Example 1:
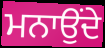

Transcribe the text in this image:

ਮਨਾਉਂਦੇ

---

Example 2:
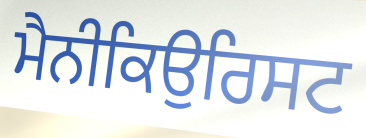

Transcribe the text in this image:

ਮੈਨੀਕਿਉਰਿਸਟ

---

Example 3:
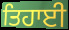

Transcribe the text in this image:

ਤਿਹਾਈ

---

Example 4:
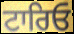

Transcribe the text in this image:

ਟਾਰਿਓ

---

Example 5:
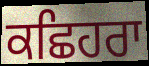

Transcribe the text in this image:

ਕਛਿਹਰਾ